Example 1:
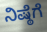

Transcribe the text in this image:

ನಿಷ್ಠೆಗೆ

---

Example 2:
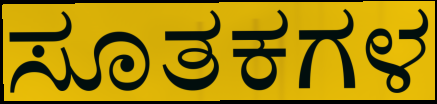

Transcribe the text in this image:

ಸೂತಕಗಳ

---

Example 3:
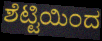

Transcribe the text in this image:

ಶೆಟ್ಟಿಯಿಂದ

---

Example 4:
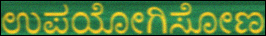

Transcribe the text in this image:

ಉಪಯೋಗಿಸೋಣ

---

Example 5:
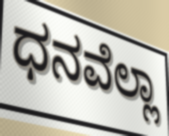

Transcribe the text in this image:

ಧನವೆಲ್ಲಾ